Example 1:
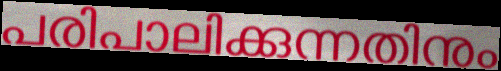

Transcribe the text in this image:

പരിപാലിക്കുന്നതിനും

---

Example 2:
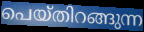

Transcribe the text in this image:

പെയ്തിറങ്ങുന്ന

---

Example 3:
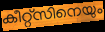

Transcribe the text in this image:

കീറ്റ്സിനെയും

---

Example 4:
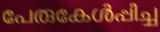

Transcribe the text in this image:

പേരുകേൾപ്പിച്ച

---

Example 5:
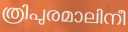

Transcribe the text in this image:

ത്രിപുരമാലിനീ